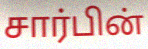
சார்பின்